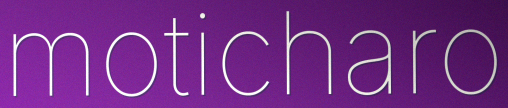
moticharo